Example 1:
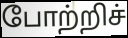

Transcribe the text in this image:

போற்றிச்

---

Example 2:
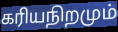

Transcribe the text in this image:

கரியநிறமும்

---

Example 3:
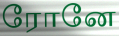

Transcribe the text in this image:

ரோனே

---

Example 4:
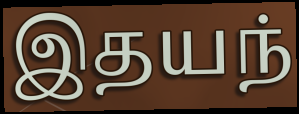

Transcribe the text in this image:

இதயந்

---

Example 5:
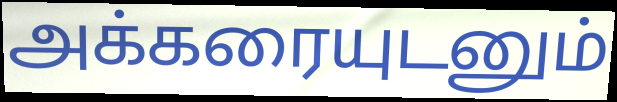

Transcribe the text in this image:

அக்கரையுடனும்